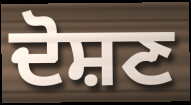
ਦੋਸ਼ਣ